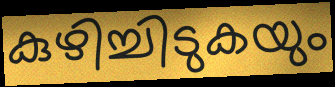
കുഴിച്ചിടുകയും